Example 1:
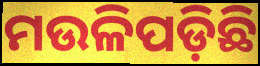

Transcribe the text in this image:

ମଉଳିପଡ଼ିଛି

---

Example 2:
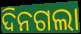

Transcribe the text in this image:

ଦିନଗଲା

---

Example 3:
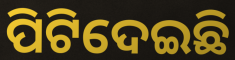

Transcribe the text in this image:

ପିଟିଦେଇଛି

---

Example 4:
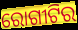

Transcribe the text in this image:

ରୋଗୀଟିର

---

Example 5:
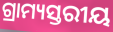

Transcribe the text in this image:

ଗ୍ରାମ୍ୟସ୍ତରୀୟ